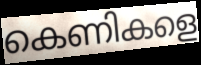
കെണികളെ